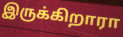
இருக்கிறாரா